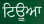
ਟਿਊਆ